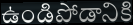
ఉండిపోడానికి